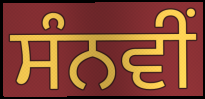
ਸੰਨਵੀਂ